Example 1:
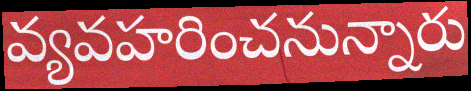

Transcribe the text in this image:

వ్యవహరించనున్నారు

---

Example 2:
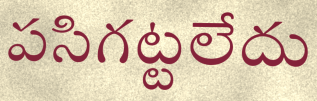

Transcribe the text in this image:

పసిగట్టలేదు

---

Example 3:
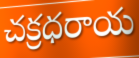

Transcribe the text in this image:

చక్రధరాయ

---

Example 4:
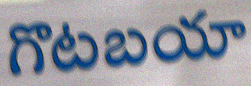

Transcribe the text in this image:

గొటబయా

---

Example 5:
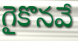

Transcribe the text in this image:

గైకొనవే